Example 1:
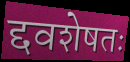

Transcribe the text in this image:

द्दवशेषतः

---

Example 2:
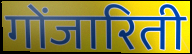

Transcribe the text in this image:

गोंजारिती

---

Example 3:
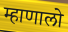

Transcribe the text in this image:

म्हाणालो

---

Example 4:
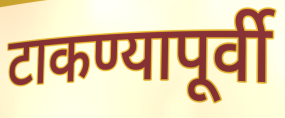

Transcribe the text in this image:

टाकण्यापूर्वी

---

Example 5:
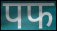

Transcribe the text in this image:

पफ